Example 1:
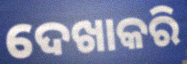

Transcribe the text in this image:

ଦେଖାକରି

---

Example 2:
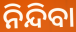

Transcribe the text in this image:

ନିନ୍ଦିବା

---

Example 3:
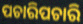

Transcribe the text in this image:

ପଚାରିପଚାରି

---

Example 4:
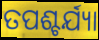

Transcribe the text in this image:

ତପଶ୍ଚର୍ଯ୍ୟା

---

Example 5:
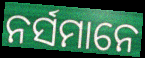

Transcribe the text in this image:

ନର୍ସମାନେ